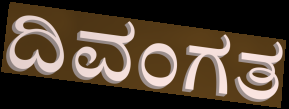
ದಿವಂಗತ